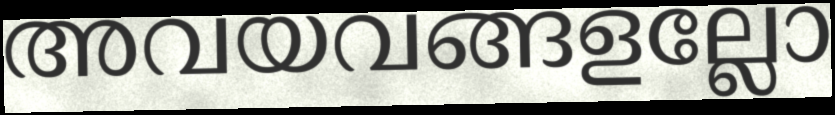
അവയവങ്ങളല്ലോ